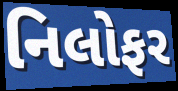
નિલોફર